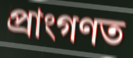
প্ৰাংগণত